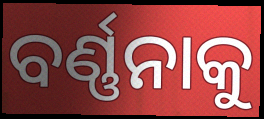
ବର୍ଣ୍ଣନାକୁ